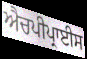
ਐਚਪੀਪ੍ਰਾਈਸ